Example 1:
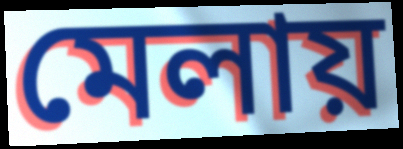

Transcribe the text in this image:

মেলায়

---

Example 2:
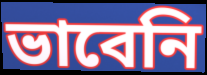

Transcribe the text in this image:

ভাবেনি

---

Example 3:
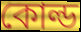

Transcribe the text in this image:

কোল্ড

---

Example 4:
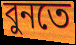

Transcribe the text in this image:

বুনতে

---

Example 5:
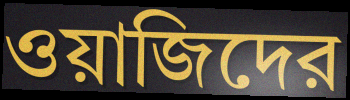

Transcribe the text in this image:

ওয়াজিদের